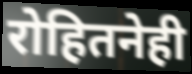
रोहितनेही